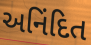
અનિંદિત